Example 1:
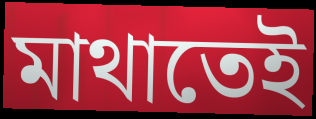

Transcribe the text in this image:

মাথাতেই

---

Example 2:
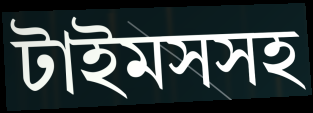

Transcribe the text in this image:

টাইমসসহ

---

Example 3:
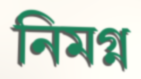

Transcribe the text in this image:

নিমগ্ন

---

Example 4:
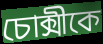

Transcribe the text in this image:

চোক্সীকে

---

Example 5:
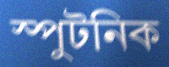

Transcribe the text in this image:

স্পুটনিক